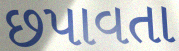
છપાવતા